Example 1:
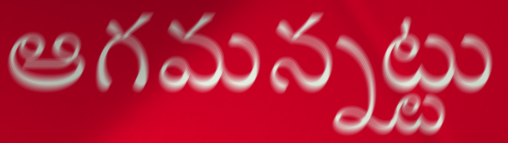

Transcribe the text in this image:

ఆగమన్నట్టు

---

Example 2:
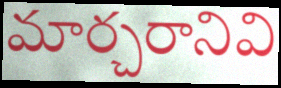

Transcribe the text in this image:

మార్చరానివి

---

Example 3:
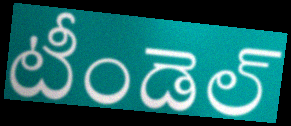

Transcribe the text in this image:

టీండెల్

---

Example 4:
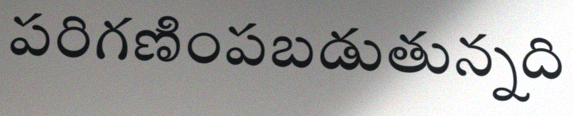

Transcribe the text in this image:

పరిగణింపబడుతున్నది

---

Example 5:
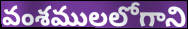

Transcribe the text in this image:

వంశములలోగాని